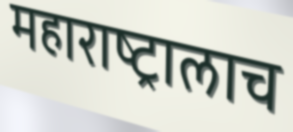
महाराष्ट्रालाच